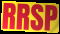
RRSP